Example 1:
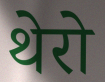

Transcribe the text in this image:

थेरो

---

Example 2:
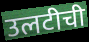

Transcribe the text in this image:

उलटीची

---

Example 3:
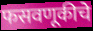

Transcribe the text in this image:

फसवणूकीचे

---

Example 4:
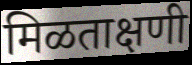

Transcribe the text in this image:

मिळताक्षणी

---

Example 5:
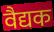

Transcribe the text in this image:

वैद्यक